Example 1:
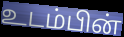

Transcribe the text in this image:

உடம்பின்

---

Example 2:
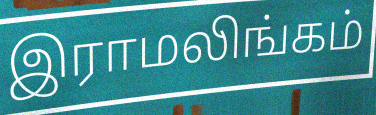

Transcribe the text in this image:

இராமலிங்கம்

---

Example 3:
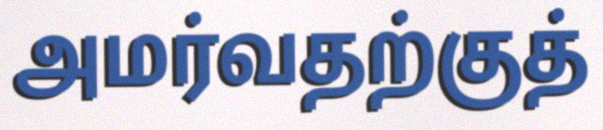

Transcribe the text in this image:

அமர்வதற்குத்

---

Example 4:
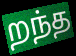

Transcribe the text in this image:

றந்த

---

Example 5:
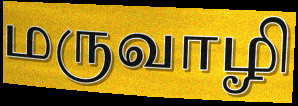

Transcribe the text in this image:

மருவாழி